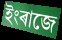
ইংৰাজে